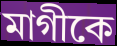
মাগীকে